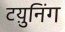
टय़ुनिंग